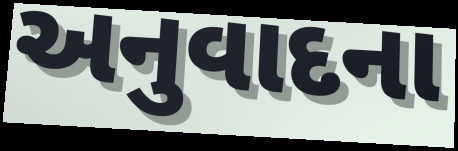
અનુવાદના